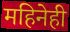
महिनेही